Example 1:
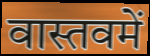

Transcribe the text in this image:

वास्तवमें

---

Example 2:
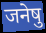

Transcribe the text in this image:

जनेषु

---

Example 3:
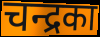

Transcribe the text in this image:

चन्द्रका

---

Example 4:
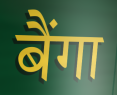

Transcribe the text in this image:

बैंगा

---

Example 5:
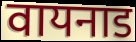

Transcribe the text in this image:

वायनाड